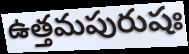
ఉత్తమపురుషః